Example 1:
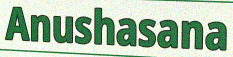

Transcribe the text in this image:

Anushasana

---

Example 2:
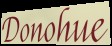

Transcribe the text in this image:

Donohue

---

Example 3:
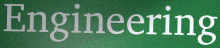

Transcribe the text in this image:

Engineering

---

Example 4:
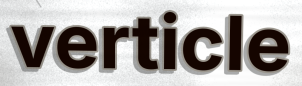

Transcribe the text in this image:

verticle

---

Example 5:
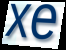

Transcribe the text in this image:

xe